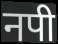
नपी